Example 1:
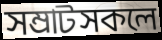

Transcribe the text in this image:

সম্ৰাটসকলে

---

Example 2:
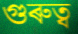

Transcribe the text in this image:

গুৰুত্ব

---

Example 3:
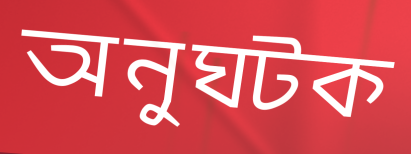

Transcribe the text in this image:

অনুঘটক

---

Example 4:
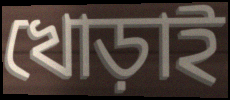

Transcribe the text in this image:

খোড়াই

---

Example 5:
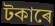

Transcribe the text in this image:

টকাৰে